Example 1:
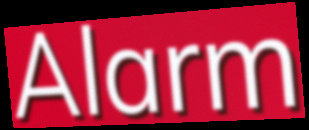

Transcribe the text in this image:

Alarm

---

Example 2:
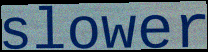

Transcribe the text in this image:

slower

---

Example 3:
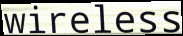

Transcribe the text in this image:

wireless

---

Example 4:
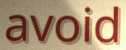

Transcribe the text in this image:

avoid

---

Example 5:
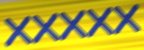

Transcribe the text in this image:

xxxxx